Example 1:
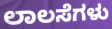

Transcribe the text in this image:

ಲಾಲಸೆಗಳು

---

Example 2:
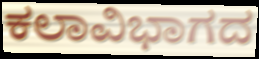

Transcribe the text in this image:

ಕಲಾವಿಭಾಗದ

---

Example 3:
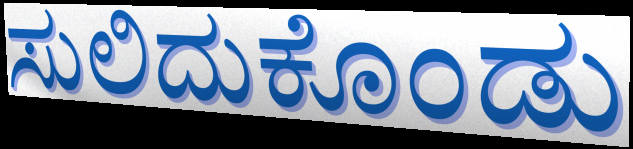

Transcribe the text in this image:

ಸುಲಿದುಕೊಂಡು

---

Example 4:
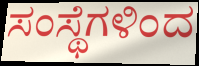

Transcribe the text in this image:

ಸಂಸ್ಥೆಗಳಿಂದ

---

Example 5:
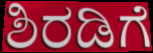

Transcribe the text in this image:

ಶಿರಡಿಗೆ